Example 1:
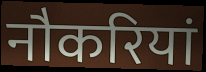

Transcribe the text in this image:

नौकरियां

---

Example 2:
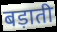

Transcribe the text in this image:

बड़ाती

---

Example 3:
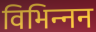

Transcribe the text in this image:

विभिन्नन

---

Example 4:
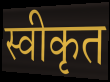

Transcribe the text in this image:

स्वीकृत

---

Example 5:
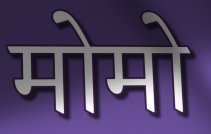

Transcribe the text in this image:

मोमो